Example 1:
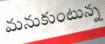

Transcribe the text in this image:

మనుకుంటున్న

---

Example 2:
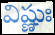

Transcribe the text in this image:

విష్ణుః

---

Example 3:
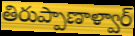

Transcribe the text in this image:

తిరుప్పాణాళ్వార్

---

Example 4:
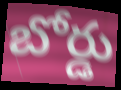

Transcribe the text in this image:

బోర్డు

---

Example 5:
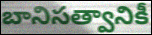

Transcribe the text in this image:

బానిసత్వానికీ